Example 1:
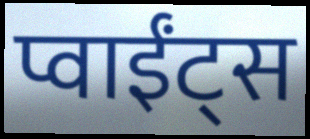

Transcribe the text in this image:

प्वाईंट्स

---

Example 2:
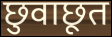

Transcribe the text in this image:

छुवाछूत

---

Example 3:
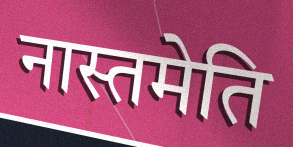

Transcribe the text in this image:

नास्तमेति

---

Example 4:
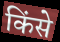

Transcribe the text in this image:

किंसे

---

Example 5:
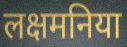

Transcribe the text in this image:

लक्षमनिया